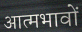
आत्मभावों